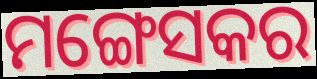
ମଙ୍ଗେସକର